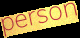
person